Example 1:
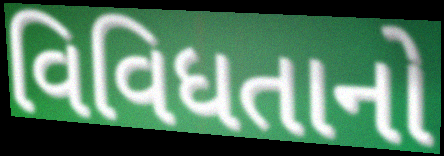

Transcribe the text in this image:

વિવિધતાનો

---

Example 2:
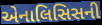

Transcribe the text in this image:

એનાલિસિસની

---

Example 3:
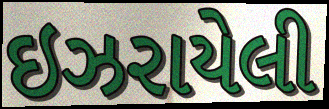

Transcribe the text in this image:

ઇઝરાયેલી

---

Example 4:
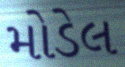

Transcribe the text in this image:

મોડેલ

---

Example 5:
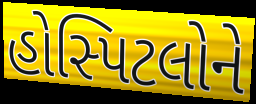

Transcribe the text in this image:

હોસ્પિટલોને